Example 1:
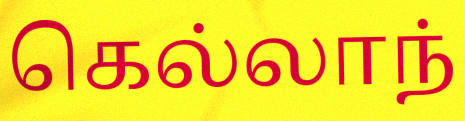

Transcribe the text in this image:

கெல்லாந்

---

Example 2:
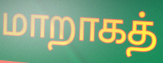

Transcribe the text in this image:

மாறாகத்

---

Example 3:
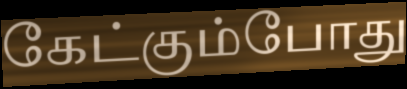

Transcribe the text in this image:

கேட்கும்போது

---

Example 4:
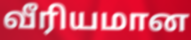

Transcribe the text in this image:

வீரியமான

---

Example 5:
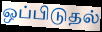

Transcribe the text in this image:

ஒப்பிடுதல்